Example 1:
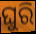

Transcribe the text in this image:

ଘୁରି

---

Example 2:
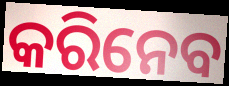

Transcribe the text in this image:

କରିନେବ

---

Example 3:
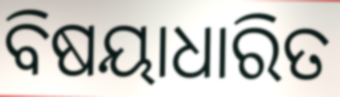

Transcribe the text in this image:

ବିଷୟାଧାରିତ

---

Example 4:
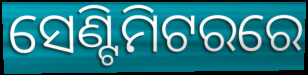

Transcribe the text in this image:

ସେଣ୍ଟିମିଟରରେ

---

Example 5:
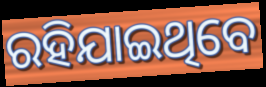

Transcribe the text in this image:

ରହିଯାଇଥିବେ